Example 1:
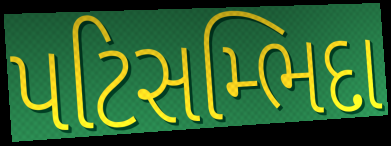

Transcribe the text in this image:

પટિસમ્ભિદા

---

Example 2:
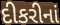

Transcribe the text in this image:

દીકરીનાં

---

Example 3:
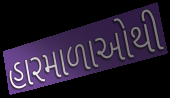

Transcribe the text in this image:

હારમાળાઓથી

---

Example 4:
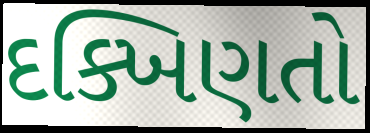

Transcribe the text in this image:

દક્ખિણતો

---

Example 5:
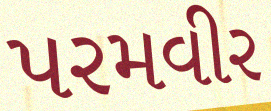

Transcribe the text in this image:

પરમવીર